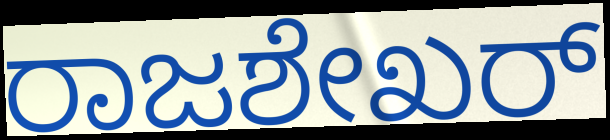
ರಾಜಶೇಖರ್